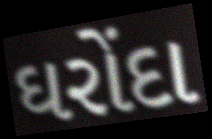
ઘરોંદા